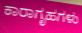
ಕಾರಾಗೃಹಗಳು